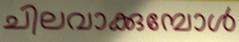
ചിലവാക്കുമ്പോൾ